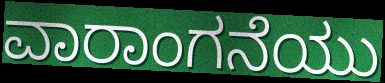
ವಾರಾಂಗನೆಯು